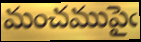
మంచముపైఁ